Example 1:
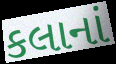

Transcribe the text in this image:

કલાનાં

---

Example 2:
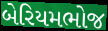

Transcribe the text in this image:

બેરિયમભોજ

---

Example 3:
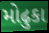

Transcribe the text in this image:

મોઢુકા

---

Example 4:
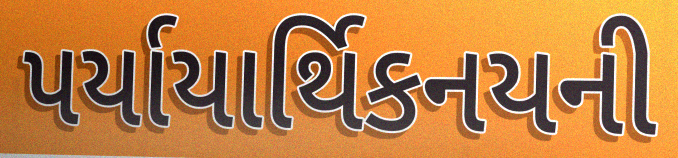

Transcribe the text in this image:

પર્યાયાર્થિકનયની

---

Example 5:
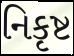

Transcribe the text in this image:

નિકૃષ્ટ